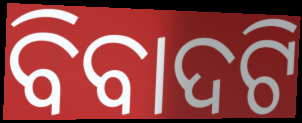
ବିବାଦଟି